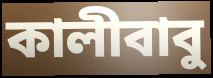
কালীবাবু